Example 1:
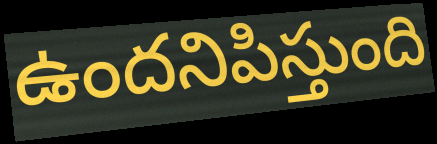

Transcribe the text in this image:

ఉందనిపిస్తుంది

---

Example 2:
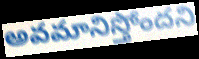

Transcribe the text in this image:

అవమానిస్తోందని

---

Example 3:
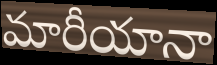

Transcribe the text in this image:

మారీయానా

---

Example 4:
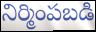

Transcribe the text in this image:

నిర్మింపబడి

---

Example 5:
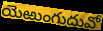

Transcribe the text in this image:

యెఱుంగుదువో